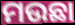
ମଉଛା